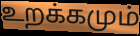
உறக்கமும்